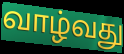
வாழ்வது